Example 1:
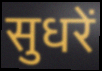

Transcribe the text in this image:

सुधरें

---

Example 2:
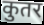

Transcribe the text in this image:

कुतर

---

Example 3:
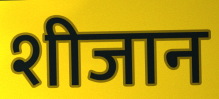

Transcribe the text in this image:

शीजान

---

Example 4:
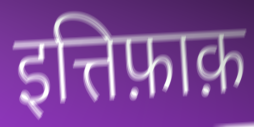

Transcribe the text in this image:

इत्तिफ़ाक़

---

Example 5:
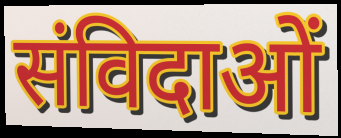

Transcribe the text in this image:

संविदाओं